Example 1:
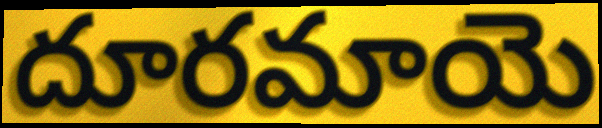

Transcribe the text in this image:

దూరమాయె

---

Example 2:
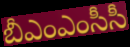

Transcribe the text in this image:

బీఎంఎంసీసీ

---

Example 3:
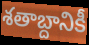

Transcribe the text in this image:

శతాబ్దానికీ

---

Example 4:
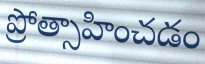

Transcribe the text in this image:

ప్రోత్సాహించడం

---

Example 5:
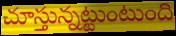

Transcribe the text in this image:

చూస్తున్నట్టుంటుంది